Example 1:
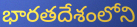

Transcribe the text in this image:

భారతదేశంలోని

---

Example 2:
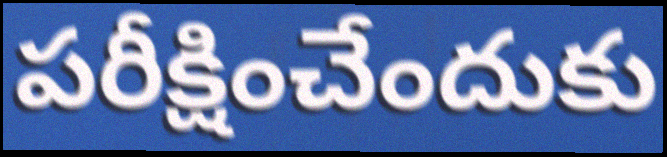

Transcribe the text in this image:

పరీక్షించేందుకు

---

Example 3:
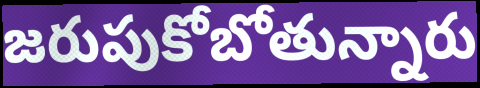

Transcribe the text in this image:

జరుపుకోబోతున్నారు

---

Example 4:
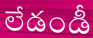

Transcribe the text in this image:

లేడండీ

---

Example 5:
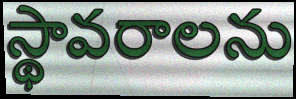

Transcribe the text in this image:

స్థావరాలను